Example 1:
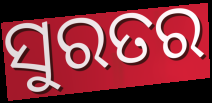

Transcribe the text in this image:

ସୁରତର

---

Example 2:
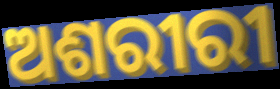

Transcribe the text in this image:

ଅଶରୀରୀ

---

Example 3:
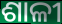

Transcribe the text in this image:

ଶାଳୀ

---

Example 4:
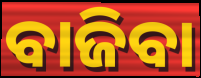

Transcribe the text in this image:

ବାଜିବା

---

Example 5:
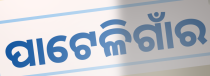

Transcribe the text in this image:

ପାଟେଳିଗାଁର